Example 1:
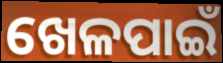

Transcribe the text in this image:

ଖେଳପାଇଁ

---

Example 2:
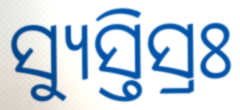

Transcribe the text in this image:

ସ୍ୟୁସ୍ତିସ୍ରଃ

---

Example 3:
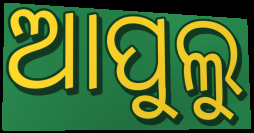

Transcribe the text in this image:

ଆପୁଲୁ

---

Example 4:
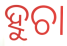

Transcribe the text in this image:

ହୁଚା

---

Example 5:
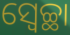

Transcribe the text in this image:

ସ୍ବେଚ୍ଛା